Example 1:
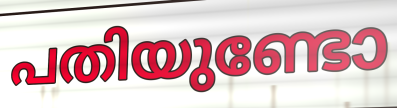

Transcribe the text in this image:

പതിയുണ്ടോ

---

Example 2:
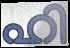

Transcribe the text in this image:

ഹി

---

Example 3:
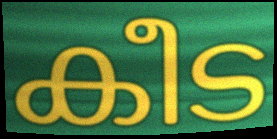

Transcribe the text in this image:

കീട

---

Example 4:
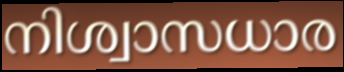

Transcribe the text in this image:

നിശ്വാസധാര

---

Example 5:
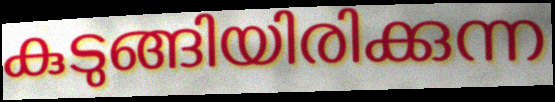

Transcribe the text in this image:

കുടുങ്ങിയിരിക്കുന്ന